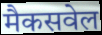
मैकसवेल